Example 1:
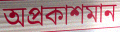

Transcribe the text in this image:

অপ্রকাশমান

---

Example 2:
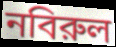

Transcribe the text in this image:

নবিরুল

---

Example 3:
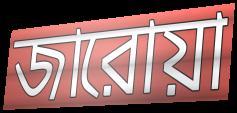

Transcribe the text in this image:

জারোয়া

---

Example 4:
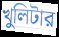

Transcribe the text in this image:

খুলিটার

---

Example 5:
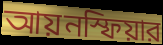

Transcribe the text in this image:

আয়নস্ফিয়ার